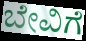
ಬೇವಿಗೆ